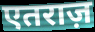
एतराज़